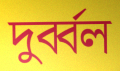
দুৰ্ব্বল